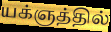
யக்ஞத்தில்